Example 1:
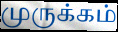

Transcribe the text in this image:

முருக்கம்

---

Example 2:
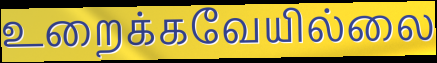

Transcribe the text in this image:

உறைக்கவேயில்லை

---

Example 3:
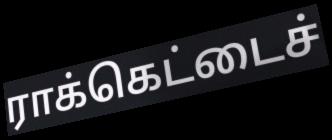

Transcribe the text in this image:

ராக்கெட்டைச்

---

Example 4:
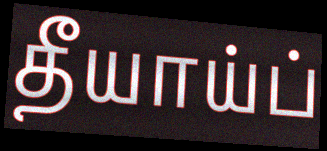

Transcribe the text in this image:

தீயாய்ப்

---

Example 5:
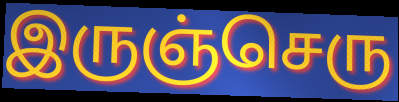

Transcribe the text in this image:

இருஞ்செரு